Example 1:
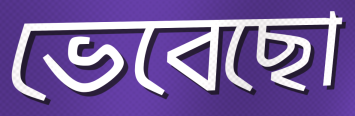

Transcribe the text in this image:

ভেবেছো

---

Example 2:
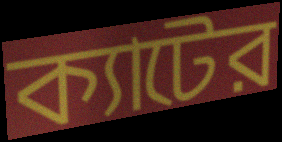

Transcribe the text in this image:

ক্যাটের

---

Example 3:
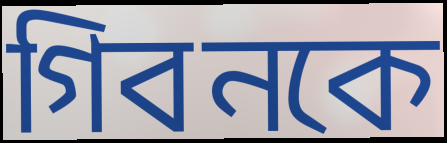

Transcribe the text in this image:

গিবনকে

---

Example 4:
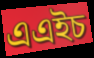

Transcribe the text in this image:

এএইচ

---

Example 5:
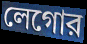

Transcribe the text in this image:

লেগোর